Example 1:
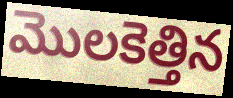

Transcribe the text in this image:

మొలకెత్తిన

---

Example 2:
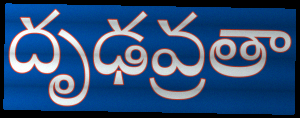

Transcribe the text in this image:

దృఢవ్రతా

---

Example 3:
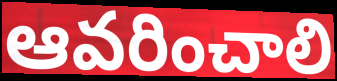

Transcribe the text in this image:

ఆవరించాలి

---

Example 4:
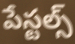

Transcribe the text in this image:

పేస్టల్స్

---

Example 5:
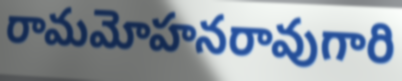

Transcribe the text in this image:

రామమోహనరావుగారి